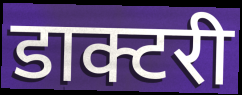
डाक्टरी